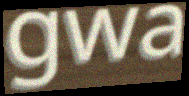
gwa